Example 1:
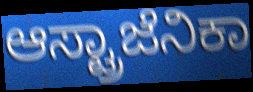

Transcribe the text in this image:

ಆಸ್ಟ್ರಾಜೆನಿಕಾ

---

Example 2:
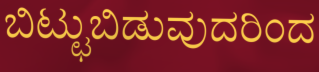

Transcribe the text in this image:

ಬಿಟ್ಟುಬಿಡುವುದರಿಂದ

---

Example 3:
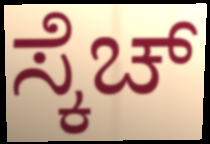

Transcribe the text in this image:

ಸ್ಕೆಚ್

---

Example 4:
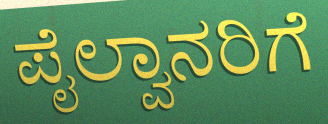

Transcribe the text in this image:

ಪೈಲ್ವಾನರಿಗೆ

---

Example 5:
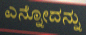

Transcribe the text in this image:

ಎನ್ನೋದನ್ನು